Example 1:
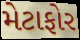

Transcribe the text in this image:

મેટાફોર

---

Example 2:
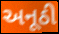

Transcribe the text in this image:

અનૂઠી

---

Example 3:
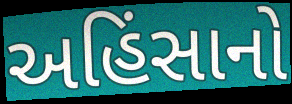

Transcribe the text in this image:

અહિંસાનો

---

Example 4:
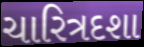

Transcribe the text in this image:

ચારિત્રદશા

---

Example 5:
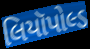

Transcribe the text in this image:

લિયૉપોલ્ડ